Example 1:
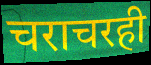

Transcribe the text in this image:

चराचरही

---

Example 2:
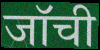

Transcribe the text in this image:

जॉची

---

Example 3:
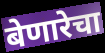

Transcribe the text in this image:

बेणारेचा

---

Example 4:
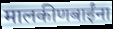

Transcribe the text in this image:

मालकीणबाईंना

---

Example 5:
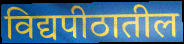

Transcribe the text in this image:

विद्यपीठातील